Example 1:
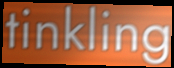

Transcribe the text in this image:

tinkling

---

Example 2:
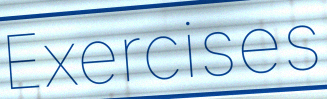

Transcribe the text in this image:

Exercises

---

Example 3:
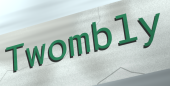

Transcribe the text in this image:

Twombly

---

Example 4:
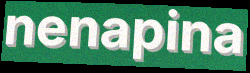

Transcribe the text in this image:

nenapina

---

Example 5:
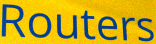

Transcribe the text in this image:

Routers